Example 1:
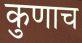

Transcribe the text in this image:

कुणाच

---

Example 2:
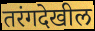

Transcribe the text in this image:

तरंगदेखील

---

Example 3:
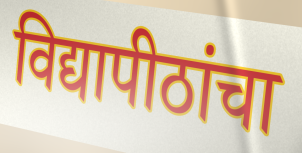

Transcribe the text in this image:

विद्यापीठांचा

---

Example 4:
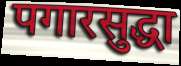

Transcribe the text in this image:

पगारसुद्धा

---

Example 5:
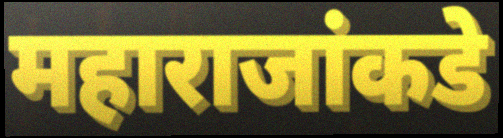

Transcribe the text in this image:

महाराजांकडे